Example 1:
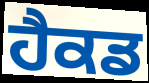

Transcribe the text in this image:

ਹੈਕਡ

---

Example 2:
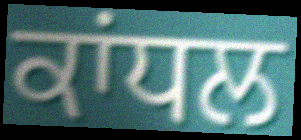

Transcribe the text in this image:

ਕਾਂਧਲ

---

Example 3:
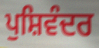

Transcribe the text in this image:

ਪੁਸ਼ਿਵੰਦਰ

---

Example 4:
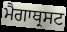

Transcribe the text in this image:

ਮੈਗਾਥ੍ਰਸਟ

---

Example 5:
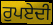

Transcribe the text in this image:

ਰੁਪਏਦੀ